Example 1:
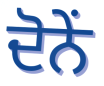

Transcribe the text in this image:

ਦੋਨੇਂ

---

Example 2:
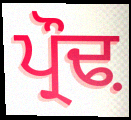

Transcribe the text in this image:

ਪ੍ਰੌਢ਼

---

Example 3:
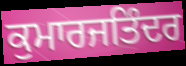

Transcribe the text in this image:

ਕੁਮਾਰਜਤਿੰਦਰ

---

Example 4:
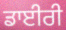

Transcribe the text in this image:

ਡਾਈਰੀ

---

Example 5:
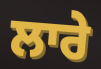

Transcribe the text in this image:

ਲਾਰੇ